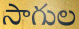
సాగుల